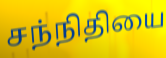
சந்நிதியை